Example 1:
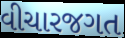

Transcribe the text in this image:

વીચારજગત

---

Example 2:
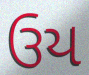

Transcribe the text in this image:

ઉય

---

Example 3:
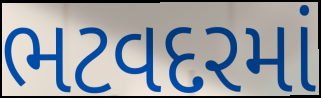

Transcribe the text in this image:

ભટવદરમાં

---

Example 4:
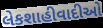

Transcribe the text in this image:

લેકશાહીવાદીઓ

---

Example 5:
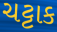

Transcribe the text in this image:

ચટ્ટાક